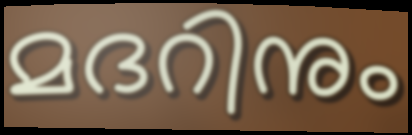
മദറിനും